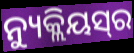
ନ୍ୟୁକ୍ଲିୟସ୍‌ର